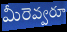
మీరెవ్వరూ